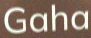
Gaha